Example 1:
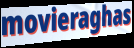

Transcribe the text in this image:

movieraghas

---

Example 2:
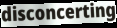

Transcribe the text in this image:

disconcerting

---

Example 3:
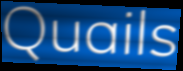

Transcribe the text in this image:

Quails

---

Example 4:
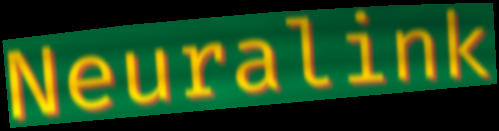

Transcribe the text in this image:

Neuralink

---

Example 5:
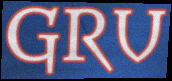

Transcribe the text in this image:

GRU